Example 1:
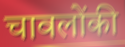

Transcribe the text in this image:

चावलोंकी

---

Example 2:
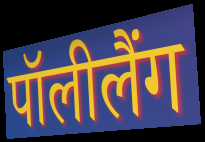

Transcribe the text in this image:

पॉलीलैंग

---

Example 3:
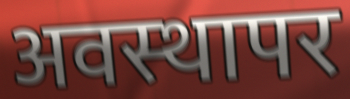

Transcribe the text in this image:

अवस्थापर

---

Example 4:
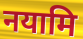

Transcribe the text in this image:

नयामि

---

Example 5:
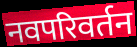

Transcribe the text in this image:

नवपरिवर्तन